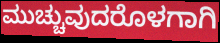
ಮುಚ್ಚುವುದರೊಳಗಾಗಿ